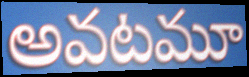
అవటమూ